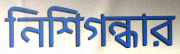
নিশিগন্ধার